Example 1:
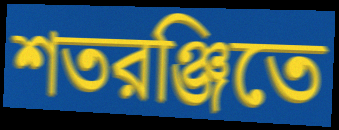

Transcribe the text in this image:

শতরঞ্জিতে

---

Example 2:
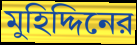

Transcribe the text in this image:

মুহিদ্দিনের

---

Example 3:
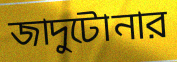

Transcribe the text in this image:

জাদুটোনার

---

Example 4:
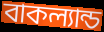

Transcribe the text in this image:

বাকল্যান্ড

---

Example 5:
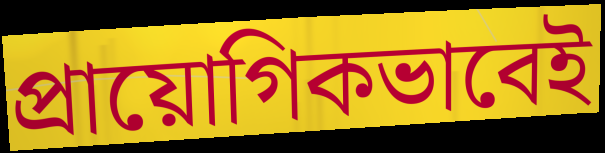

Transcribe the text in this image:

প্রায়োগিকভাবেই